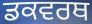
ਡਕਵਰਥ